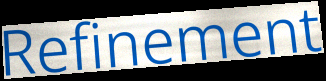
Refinement